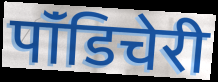
पॉंडिचेरी